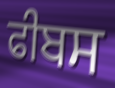
ਫੀਬਸ